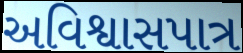
અવિશ્વાસપાત્ર